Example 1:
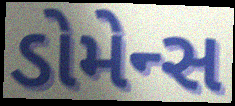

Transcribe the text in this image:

ડોમેન્સ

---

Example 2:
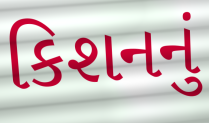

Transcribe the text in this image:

કિશનનું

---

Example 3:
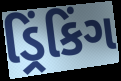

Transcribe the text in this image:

ડ્રિંકિંગ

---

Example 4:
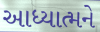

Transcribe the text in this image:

આધ્યાત્મને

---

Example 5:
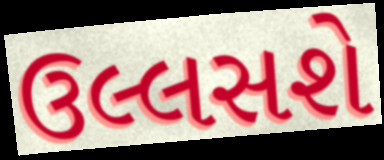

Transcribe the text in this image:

ઉલ્લસશે